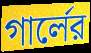
গার্লের